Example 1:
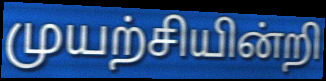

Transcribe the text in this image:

முயற்சியின்றி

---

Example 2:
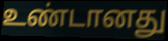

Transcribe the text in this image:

உண்டானது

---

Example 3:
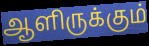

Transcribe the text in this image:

ஆளிருக்கும்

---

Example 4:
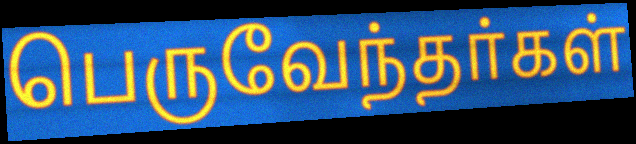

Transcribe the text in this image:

பெருவேந்தர்கள்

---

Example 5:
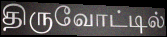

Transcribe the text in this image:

திருவோட்டில்